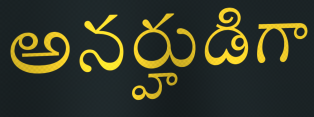
అనర్హుడిగా